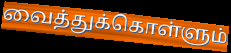
வைத்துக்கொள்ளும்